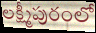
లక్ష్మీపురంలో